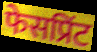
फेसप्रिंट